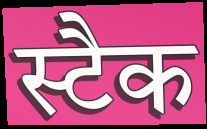
स्‍टैक